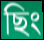
ছিং